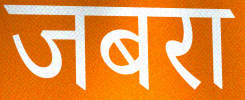
जबरा